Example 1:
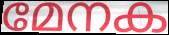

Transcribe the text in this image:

മേനക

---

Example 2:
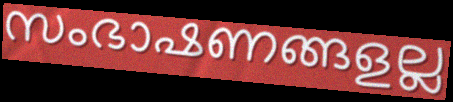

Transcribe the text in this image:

സംഭാഷണങ്ങളല്ല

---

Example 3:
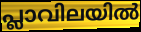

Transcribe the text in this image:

പ്ലാവിലയിൽ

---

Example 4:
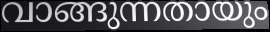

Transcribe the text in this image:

വാങ്ങുന്നതായും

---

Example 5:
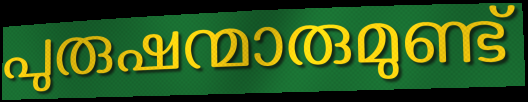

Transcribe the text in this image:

പുരുഷന്മാരുമുണ്ട്